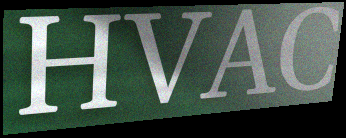
HVAC